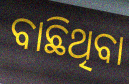
ବାଛିଥିବା